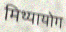
मिथ्यायोग